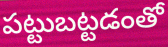
పట్టుబట్టడంతో